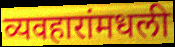
व्यवहारांमधली